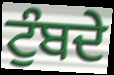
ਟੁੰਬਦੇ